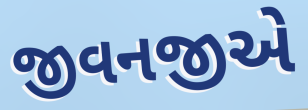
જીવનજીએ